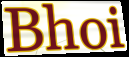
Bhoi